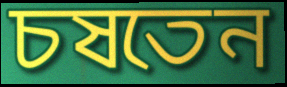
চষতেন